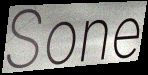
Sone